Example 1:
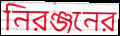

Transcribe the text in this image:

নিরঞ্জনের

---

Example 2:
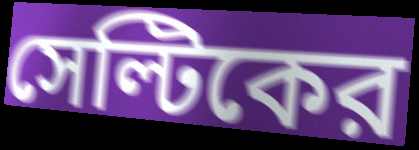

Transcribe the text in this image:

সেল্টিকের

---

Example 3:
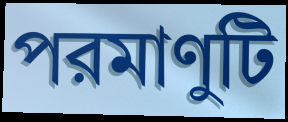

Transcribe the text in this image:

পরমাণুটি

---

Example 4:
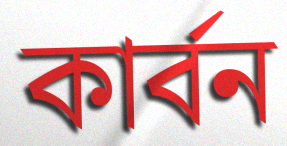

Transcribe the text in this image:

কার্বন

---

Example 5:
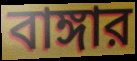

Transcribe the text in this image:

বাঙ্গার